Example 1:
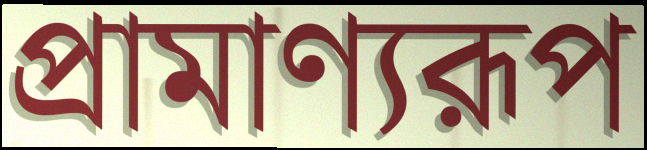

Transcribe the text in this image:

প্রামাণ্যরূপ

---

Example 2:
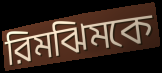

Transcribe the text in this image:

রিমঝিমকে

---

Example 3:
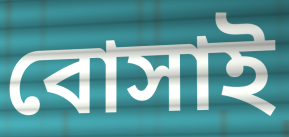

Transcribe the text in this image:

বোসাই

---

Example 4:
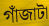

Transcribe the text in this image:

গাঁজাটা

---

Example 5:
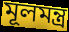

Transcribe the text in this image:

মূলমন্ত্র